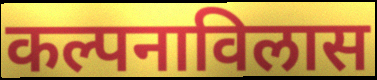
कल्पनाविलास